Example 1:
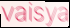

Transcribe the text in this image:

vaisya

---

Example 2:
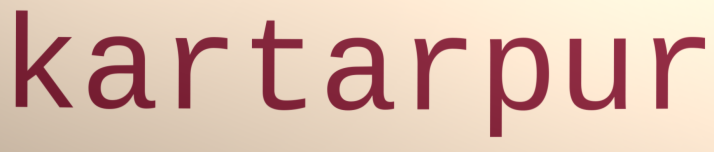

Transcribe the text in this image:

kartarpur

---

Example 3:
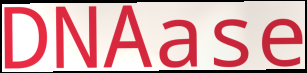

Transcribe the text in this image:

DNAase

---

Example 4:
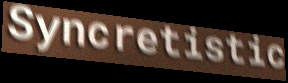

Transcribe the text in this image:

Syncretistic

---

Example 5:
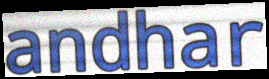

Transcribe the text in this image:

andhar